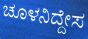
ಚೂಳನಿದ್ದೇಸ